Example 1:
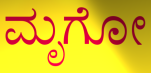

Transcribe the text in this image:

ಮೃಗೋ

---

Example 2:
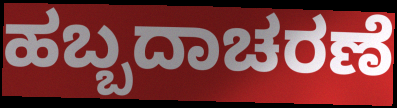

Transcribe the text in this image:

ಹಬ್ಬದಾಚರಣೆ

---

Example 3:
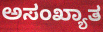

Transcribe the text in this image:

ಅಸಂಖ್ಯಾತ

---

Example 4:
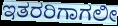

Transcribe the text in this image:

ಇತರರಿಗಾಗಲೀ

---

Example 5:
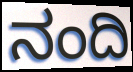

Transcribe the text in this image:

ನಂದಿ